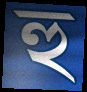
হু